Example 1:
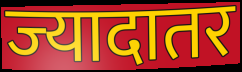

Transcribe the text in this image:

ज्‍यादातर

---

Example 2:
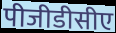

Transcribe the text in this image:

पीजीडीसीए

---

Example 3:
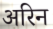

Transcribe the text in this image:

अरिन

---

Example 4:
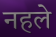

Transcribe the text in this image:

नहले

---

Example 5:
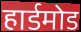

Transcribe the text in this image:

हार्डमोड